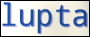
lupta